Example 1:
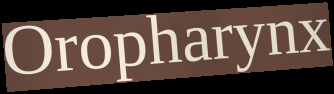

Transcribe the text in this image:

Oropharynx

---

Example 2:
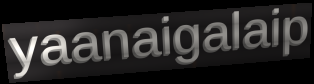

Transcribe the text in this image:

yaanaigalaip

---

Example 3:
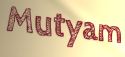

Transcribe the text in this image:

Mutyam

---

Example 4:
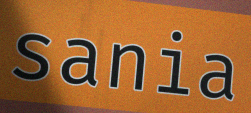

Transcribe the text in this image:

sania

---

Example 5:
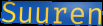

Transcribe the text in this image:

Suuren